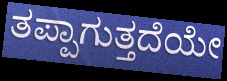
ತಪ್ಪಾಗುತ್ತದೆಯೇ